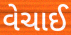
વેચાઈ